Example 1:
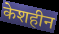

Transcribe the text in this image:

केशहीन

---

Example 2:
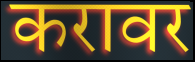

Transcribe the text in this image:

करावर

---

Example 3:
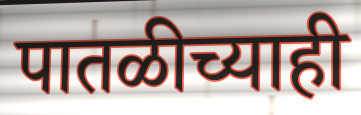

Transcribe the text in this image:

पातळीच्याही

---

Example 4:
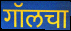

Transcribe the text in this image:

गॉलचा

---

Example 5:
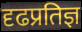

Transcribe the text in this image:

दृढप्रतिज्ञ